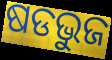
ଷଡଭୁଜ